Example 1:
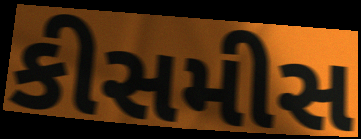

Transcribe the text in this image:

કીસમીસ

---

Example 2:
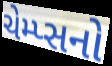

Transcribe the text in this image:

ચેમ્પ્સનો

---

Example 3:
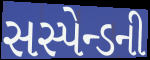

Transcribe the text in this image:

સસ્પેન્ડની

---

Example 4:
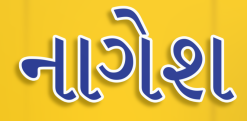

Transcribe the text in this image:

નાગેશ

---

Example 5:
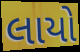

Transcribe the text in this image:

લાયો